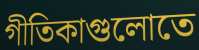
গীতিকাগুলোতে